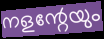
നളന്റേയും